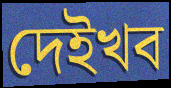
দেইখব